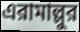
এরামাল্লুর